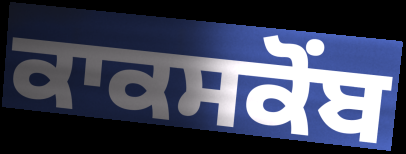
ਕਾਕਸਕੋਂਬ